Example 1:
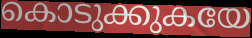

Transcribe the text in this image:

കൊടുക്കുകയേ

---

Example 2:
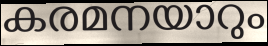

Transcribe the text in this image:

കരമനയാറും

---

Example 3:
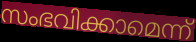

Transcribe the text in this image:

സംഭവിക്കാമെന്ന്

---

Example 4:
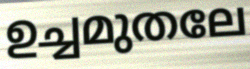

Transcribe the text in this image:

ഉച്ചമുതലേ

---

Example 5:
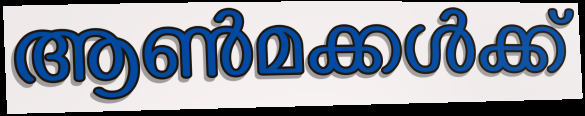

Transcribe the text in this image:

ആൺമക്കൾക്ക്